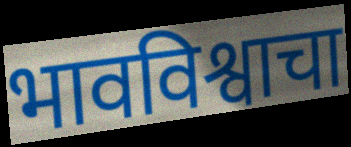
भावविश्वाचा